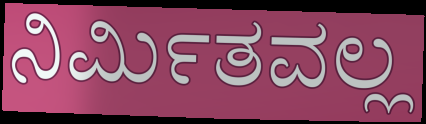
ನಿರ್ಮಿತವಲ್ಲ